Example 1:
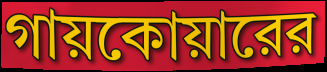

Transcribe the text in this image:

গায়কোয়ারের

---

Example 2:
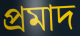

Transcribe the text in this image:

প্রমাদ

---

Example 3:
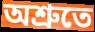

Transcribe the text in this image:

অশ্রুতে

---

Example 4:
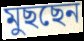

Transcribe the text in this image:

মুছছেন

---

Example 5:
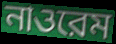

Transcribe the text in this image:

নাওরেম